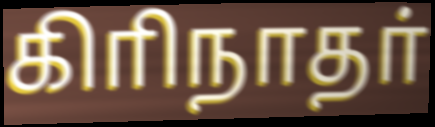
கிரிநாதர்